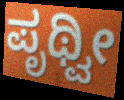
ಪೃಥ್ವೀ